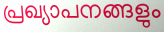
പ്രഖ്യാപനങ്ങളും